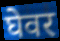
घेवर